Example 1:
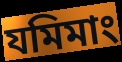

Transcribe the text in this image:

যমিমাং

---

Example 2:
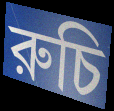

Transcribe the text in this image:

রুচি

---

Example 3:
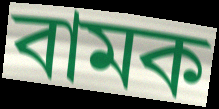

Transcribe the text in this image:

বামক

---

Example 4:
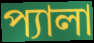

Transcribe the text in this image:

প্যালা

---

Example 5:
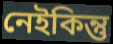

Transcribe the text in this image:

নেইকিন্তু